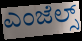
ಎಂಜೆಲ್ಸ್